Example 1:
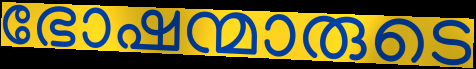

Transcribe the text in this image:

ഭോഷന്മാരുടെ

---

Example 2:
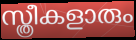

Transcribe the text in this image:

സ്ത്രീകളാരും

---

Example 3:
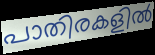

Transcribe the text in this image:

പാതിരകളിൽ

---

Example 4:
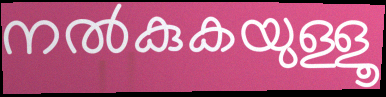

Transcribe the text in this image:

നൽകുകയുള്ളൂ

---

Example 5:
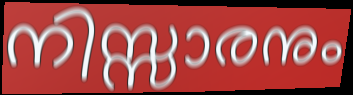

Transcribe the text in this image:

നിസ്സാരനും